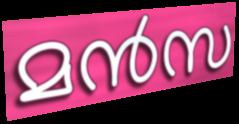
മൻസ